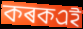
কৰকএই